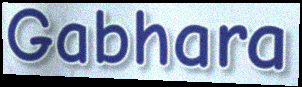
Gabhara